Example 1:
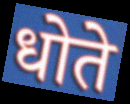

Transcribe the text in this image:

धोते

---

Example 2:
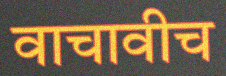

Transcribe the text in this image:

वाचावीच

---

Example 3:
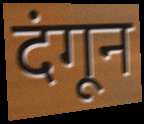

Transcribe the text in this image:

दंगून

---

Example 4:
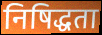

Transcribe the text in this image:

निषिद्धता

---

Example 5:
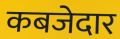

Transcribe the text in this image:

कबजेदार